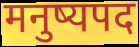
मनुष्यपद